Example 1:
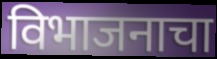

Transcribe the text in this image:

विभाजनाचा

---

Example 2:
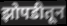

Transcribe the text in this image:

झोपडीतून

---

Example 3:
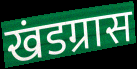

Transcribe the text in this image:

खंडग्रास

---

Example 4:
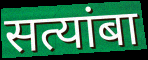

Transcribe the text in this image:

सत्यांबा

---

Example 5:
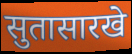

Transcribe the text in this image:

सुतासारखे